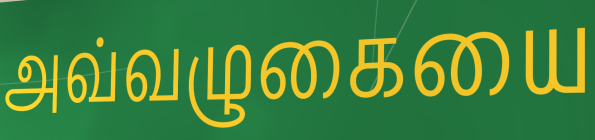
அவ்வழுகையை